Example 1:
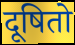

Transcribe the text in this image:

दूषितो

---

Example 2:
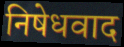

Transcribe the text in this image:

निषेधवाद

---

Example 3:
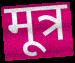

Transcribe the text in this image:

मूत्र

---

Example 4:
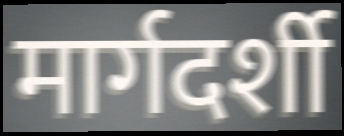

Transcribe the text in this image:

मार्गदर्शी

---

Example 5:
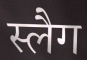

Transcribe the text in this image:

स्लैग